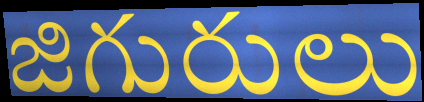
జిగురులు